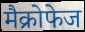
मैक्रोफेज